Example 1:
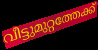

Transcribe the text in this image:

വീട്ടുമുറ്റത്തേക്ക്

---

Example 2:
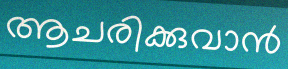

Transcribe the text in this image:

ആചരിക്കുവാൻ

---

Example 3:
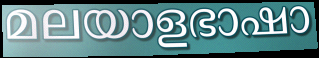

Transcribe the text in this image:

മലയാളഭാഷാ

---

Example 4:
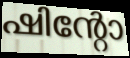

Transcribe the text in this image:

ഷിന്റോ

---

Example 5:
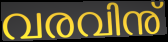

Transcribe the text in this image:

വരവിനു്